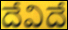
దేవిదే